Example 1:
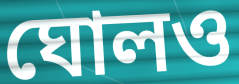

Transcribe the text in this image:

ঘোলও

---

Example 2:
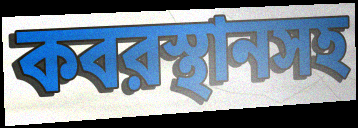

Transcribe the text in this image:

কবরস্থানসহ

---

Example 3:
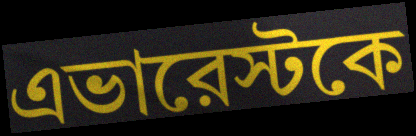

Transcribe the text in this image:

এভারেস্টকে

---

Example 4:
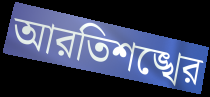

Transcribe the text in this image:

আরতিশঙ্খের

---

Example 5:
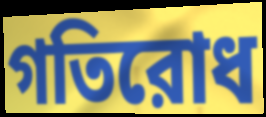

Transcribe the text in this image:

গতিরোধ